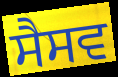
ਸੈਸਵ